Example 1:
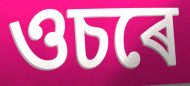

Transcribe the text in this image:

ওচৰে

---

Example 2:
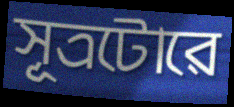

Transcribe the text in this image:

সূত্ৰটোৱে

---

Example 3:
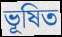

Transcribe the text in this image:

ভূষিত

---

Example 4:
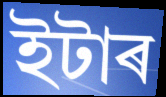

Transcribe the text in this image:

ইটাৰ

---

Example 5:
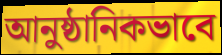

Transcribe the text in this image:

আনুষ্ঠানিকভাবে